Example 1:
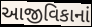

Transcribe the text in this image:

આજીવિકાનાં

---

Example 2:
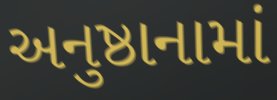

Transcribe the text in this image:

અનુષ્ઠાનામાં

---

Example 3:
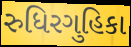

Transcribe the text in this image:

રુધિરગુહિકા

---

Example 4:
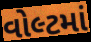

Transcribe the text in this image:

વોલ્ટમાં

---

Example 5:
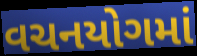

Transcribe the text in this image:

વચનયોગમાં